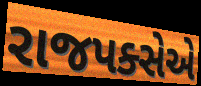
રાજપક્સેએ